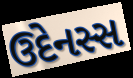
ઉદેનસ્સ